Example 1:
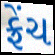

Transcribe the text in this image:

ફ્રેંચ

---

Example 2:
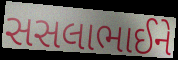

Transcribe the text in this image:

સસલાભાઈને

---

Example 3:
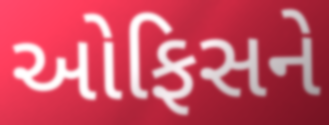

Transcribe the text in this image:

ઓફિસને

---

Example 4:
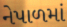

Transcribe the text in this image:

નેપાળમાં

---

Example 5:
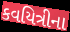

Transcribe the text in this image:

કવયિત્રીના